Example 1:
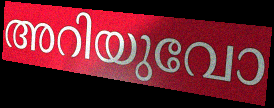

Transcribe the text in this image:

അറിയുവോ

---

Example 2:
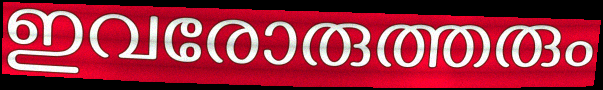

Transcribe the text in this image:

ഇവരോരുത്തരും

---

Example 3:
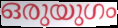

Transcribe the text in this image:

ഒരുയുഗം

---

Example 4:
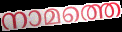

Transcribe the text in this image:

നാമത്തെ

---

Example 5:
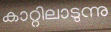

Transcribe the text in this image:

കാറ്റിലാടുന്നു